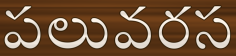
పలువరస